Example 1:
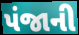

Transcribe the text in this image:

પંજાની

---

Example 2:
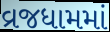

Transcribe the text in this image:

વ્રજધામમાં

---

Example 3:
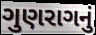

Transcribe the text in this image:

ગુણરાગનું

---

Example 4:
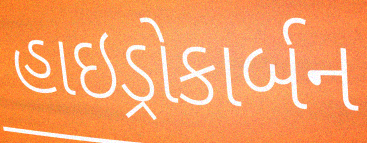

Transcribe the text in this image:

હાઇડ્રોકાર્બન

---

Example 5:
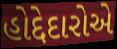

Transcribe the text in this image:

હોદ્દેદારોએ